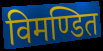
विमण्डित